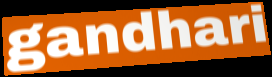
gandhari